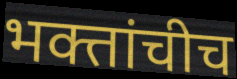
भक्तांचीच